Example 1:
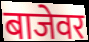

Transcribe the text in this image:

बाजेवर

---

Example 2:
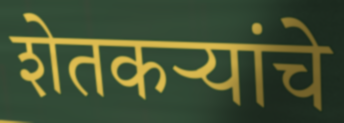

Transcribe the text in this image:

शेतकऱ्यांचे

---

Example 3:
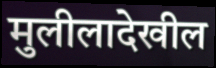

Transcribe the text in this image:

मुलीलादेखील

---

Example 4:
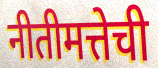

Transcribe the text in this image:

नीतीमत्तेची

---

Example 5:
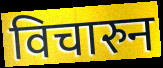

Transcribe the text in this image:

विचारुन